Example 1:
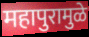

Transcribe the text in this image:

महापुरामुळे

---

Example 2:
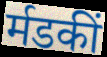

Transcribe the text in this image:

र्मडकीं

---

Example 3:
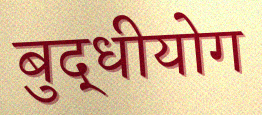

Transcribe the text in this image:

बुद्धीयोग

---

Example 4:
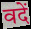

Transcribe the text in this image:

वदें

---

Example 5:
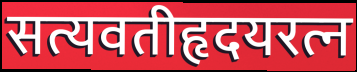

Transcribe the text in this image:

सत्यवतीहृदयरत्न